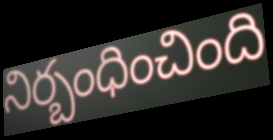
నిర్బంధించింది